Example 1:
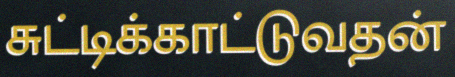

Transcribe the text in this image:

சுட்டிக்காட்டுவதன்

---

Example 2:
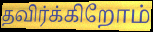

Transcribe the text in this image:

தவிர்க்கிறோம்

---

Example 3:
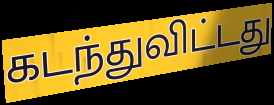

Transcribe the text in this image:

கடந்துவிட்டது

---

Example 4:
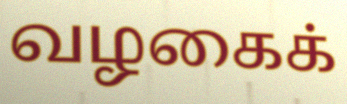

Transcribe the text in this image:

வழகைக்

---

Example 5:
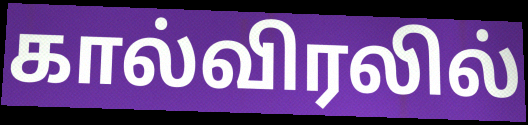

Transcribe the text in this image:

கால்விரலில்